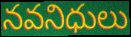
నవనిధులు